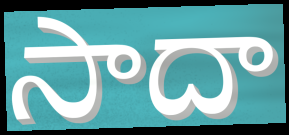
సాదా